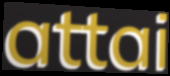
attai